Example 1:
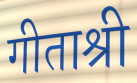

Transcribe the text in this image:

गीताश्री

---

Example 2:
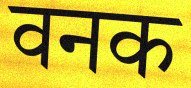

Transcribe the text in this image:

वनक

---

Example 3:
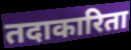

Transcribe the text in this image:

तदाकारिता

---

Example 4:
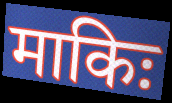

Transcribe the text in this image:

माकिः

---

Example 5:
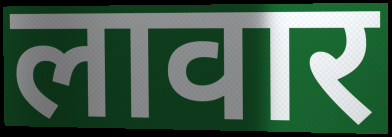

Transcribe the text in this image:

लावार